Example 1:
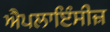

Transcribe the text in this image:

ਐਪਲਾਇੰਸੀਜ਼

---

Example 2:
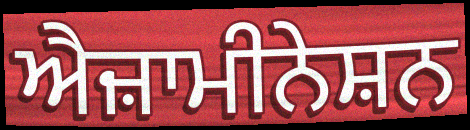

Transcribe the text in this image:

ਐਜ਼ਾਮੀਨੇਸ਼ਨ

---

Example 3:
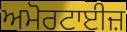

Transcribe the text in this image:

ਅਮੋਰਟਾਈਜ਼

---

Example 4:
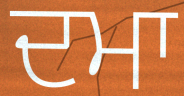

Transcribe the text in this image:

ਦਮਾ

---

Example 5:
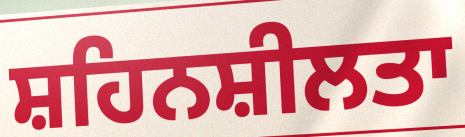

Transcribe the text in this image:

ਸ਼ਹਿਨਸ਼ੀਲਤਾ